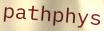
pathphys